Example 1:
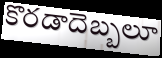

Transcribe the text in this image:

కొరడాదెబ్బలూ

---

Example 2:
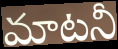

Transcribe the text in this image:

మాటనీ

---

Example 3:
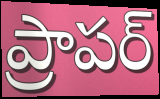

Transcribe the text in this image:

ప్రాపర్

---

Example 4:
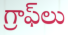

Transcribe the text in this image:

గ్రాఫ్‌లు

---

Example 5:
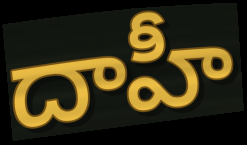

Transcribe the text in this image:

దాహీ